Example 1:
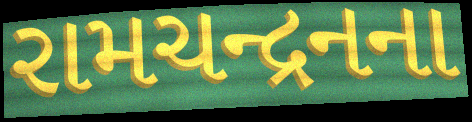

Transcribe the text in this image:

રામચન્દ્રનના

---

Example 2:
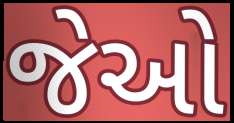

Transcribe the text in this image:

જેઓ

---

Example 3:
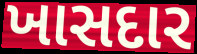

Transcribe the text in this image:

ખાસદાર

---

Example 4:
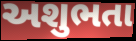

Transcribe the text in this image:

અશુભતા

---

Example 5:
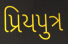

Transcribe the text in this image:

પ્રિયપુત્ર